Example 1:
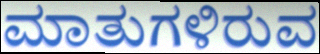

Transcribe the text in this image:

ಮಾತುಗಳಿರುವ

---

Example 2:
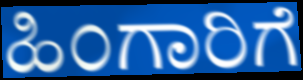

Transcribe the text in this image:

ಹಿಂಗಾರಿಗೆ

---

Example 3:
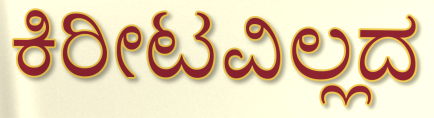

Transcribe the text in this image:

ಕಿರೀಟವಿಲ್ಲದ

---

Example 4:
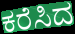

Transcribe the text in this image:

ಕರೆಸಿದ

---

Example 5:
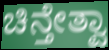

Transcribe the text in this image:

ಚಿನ್ತೇತ್ವಾ